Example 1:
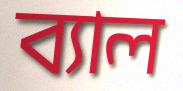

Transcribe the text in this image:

ব্যাল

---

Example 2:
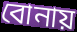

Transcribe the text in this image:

বোনায়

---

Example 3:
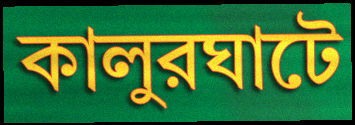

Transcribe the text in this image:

কালুরঘাটে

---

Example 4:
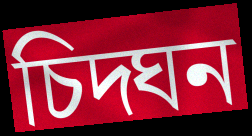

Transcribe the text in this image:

চিদ্ঘন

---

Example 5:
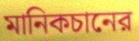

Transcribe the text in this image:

মানিকচানের